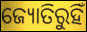
ଜ୍ୟୋତିରୁହିଁ